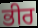
ਭੀਰ